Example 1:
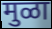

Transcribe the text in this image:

मुळा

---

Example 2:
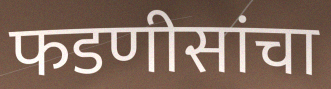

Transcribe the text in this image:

फडणीसांचा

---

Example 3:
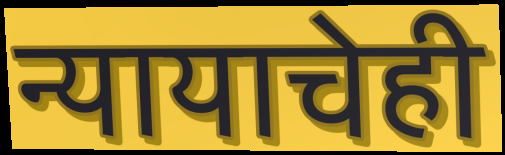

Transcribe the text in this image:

न्यायाचेही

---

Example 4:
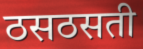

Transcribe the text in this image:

ठसठसती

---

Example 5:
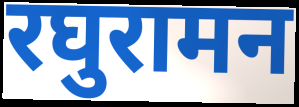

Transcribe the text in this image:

रघुरामन